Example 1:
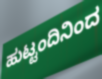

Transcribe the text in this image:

ಹುಟ್ಟಂದಿನಿಂದ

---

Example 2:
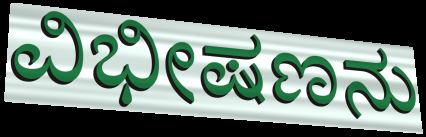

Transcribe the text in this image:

ವಿಭೀಷಣನು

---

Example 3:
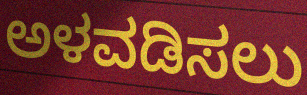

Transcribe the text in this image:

ಅಳವಡಿಸಲು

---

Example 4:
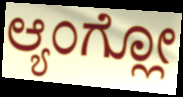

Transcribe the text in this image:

ಆ್ಯಂಗ್ಲೋ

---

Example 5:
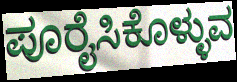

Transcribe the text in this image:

ಪೂರೈಸಿಕೊಳ್ಳುವ